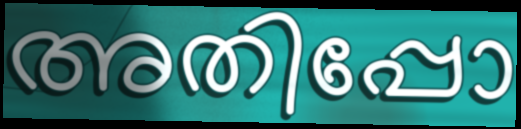
അതിപ്പോ